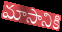
మాసానికి